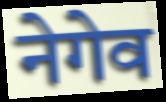
नेगेव